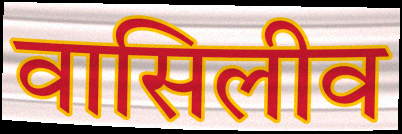
वासिलीव